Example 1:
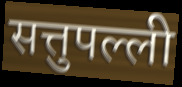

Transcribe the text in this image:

सत्तुपल्ली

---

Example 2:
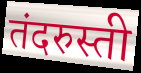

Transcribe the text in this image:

तंदरुस्ती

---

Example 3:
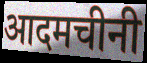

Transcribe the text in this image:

आदमचीनी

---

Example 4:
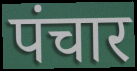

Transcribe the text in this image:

पंचार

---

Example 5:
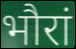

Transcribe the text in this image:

भौरां